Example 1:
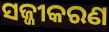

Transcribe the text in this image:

ସଜ୍ଜୀକରଣ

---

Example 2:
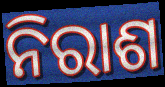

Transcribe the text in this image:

ନିରାଶ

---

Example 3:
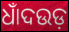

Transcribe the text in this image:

ଧାଁଦଉଡ଼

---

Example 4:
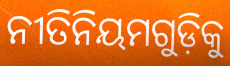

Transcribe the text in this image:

ନୀତିନିୟମଗୁଡ଼ିକୁ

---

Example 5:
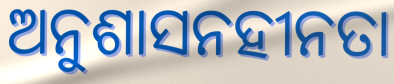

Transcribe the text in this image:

ଅନୁଶାସନହୀନତା